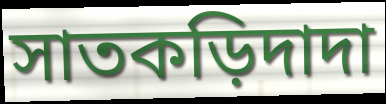
সাতকড়িদাদা